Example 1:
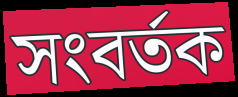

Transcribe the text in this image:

সংবর্তক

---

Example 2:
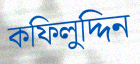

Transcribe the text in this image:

কফিলুদ্দিন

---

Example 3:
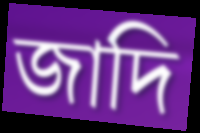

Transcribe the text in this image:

জাদি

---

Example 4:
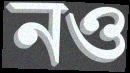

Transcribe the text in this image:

নও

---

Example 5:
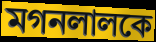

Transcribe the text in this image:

মগনলালকে